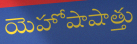
యెహోషాషాత్తు